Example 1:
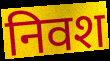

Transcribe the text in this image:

निवश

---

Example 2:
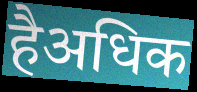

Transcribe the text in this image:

हैअधिक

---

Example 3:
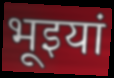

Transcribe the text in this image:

भूइयां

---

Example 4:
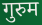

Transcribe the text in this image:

गुरुम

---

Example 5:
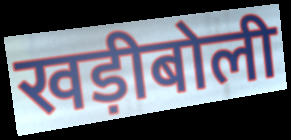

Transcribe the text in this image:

खड़ीबोली